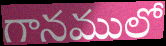
గానములో